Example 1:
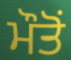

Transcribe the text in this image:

ਮੌਤੋਂ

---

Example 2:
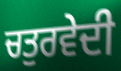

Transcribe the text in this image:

ਚਤੁਰਵੇਦੀ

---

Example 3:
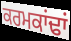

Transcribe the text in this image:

ਕਰਮਕਾਂਢਾਂ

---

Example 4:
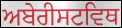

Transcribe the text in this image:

ਅਬੇਰੀਸਟਵਿਥ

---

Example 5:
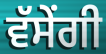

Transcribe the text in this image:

ਵੱਸੇਂਗੀ